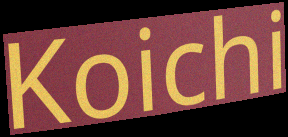
Koichi